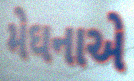
મેઘનાએ